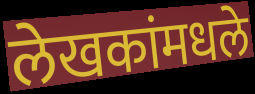
लेखकांमधले